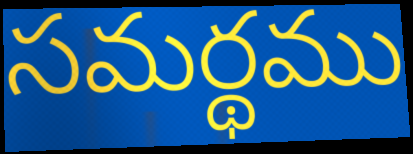
సమర్థము